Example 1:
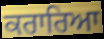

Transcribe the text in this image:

ਕਰਾਰਿਆ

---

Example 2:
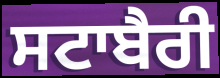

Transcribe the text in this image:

ਸਟਾਬੈਰੀ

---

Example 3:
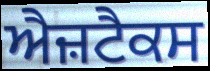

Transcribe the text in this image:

ਐਜ਼ਟੈਕਸ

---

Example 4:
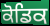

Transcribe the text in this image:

ਕੋਡਿਕ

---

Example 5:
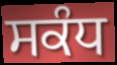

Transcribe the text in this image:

ਸਕੰਧ